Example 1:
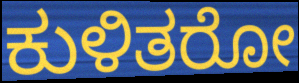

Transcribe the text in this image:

ಕುಳಿತರೋ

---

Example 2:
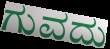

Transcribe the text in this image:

ಗುವದು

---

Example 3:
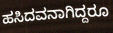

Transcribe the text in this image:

ಹಸಿದವನಾಗಿದ್ದರೂ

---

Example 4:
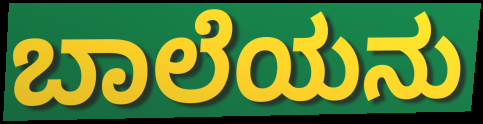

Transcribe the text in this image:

ಬಾಲೆಯನು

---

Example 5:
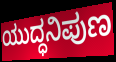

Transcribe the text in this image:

ಯುದ್ಧನಿಪುಣ